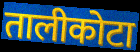
तालीकोटा